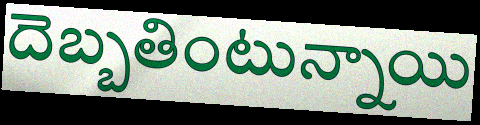
దెబ్బతింటున్నాయి